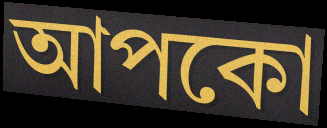
আপকো